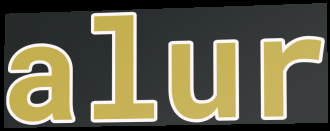
alur